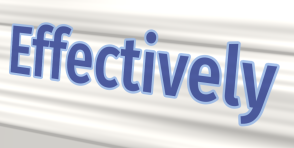
Effectively